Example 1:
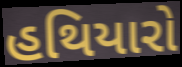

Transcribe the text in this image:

હથિયારો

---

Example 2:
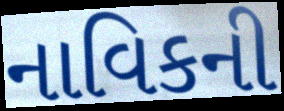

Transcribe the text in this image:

નાવિકની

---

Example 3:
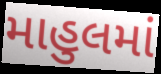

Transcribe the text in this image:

માહુલમાં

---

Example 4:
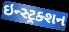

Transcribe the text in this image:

ઇન્સ્ટ્રક્શન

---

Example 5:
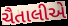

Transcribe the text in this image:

ચૈતાલીએ